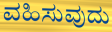
ವಹಿಸುವುದು